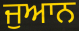
ਜੁਆਨ